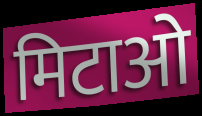
मिटाओ